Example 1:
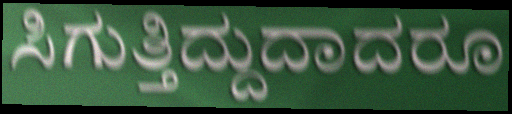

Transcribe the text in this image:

ಸಿಗುತ್ತಿದ್ದುದಾದರೂ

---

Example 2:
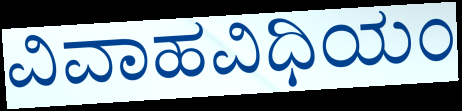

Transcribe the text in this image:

ವಿವಾಹವಿಧಿಯಂ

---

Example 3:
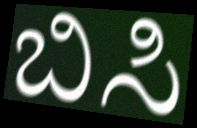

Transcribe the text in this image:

ಬಿಸಿ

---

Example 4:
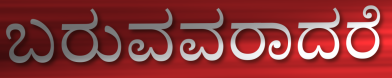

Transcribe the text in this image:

ಬರುವವರಾದರೆ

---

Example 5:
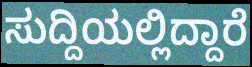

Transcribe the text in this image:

ಸುದ್ದಿಯಲ್ಲಿದ್ದಾರೆ